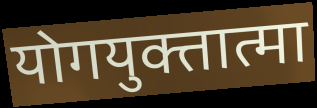
योगयुक्तात्मा